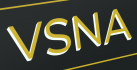
VSNA